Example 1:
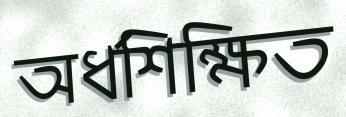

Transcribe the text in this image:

অর্ধশিক্ষিত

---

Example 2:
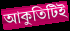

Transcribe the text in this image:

আকুতিটিই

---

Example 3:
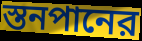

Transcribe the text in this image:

স্তনপানের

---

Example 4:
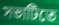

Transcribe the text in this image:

সভাটিতে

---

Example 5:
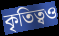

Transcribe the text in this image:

কৃতিত্বও